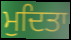
ਮੁਦਿਤਾ